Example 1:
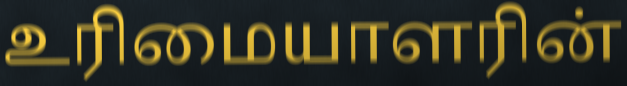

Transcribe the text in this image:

உரிமையாளரின்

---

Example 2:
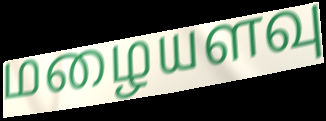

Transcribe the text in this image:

மழையளவு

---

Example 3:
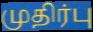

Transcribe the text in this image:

முதிர்பு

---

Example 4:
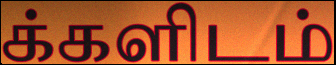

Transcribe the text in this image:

க்களிடம்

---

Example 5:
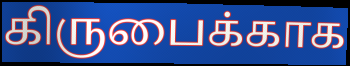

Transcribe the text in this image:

கிருபைக்காக